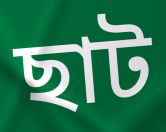
ছাট